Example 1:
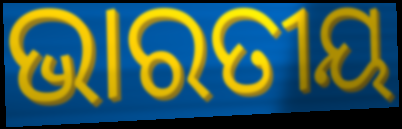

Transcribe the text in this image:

ଭାରତୀୟ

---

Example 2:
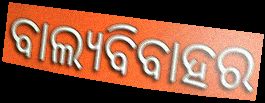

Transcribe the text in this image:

ବାଲ୍ୟବିବାହର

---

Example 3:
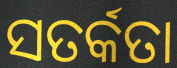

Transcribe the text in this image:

ସତର୍କତା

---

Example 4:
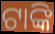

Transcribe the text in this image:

ଟାଙ୍କି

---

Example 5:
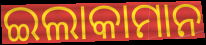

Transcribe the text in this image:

ଇଲାକାମାନ